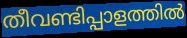
തീവണ്ടിപ്പാളത്തിൽ